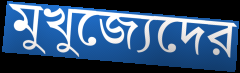
মুখুজ্যেদের